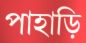
পাহাড়ি